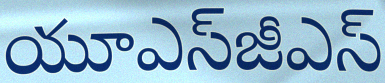
యూఎస్‌జీఎస్